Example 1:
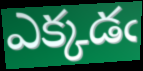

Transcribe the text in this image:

ఎక్కడఁ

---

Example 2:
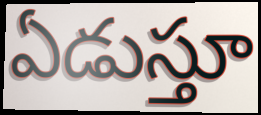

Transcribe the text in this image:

ఏడుస్తూ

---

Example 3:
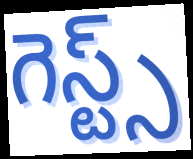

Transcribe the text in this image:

గెస్ట్స్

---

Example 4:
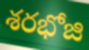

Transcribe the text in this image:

శరభోజి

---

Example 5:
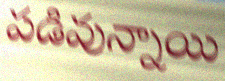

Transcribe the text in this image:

పడివున్నాయి